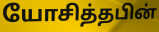
யோசித்தபின்